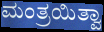
ಮಂತ್ರಯಿತ್ವಾ